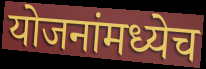
योजनांमध्येच